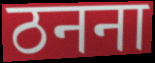
ठनना